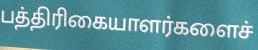
பத்திரிகையாளர்களைச்